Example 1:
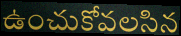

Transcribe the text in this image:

ఉంచుకోవలసిన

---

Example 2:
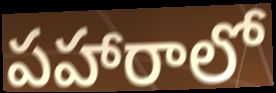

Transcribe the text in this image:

పహారాలో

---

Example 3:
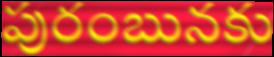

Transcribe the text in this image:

పురంబునకు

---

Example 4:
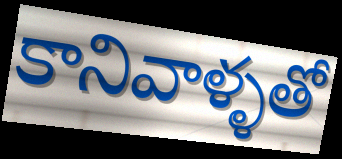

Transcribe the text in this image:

కానివాళ్ళతో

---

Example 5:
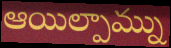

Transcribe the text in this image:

ఆయిల్పామ్ను